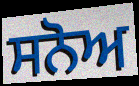
ਸਨੋਅ